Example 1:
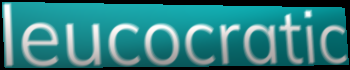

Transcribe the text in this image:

leucocratic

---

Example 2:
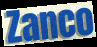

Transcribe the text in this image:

Zanco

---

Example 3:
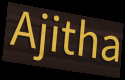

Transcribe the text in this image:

Ajitha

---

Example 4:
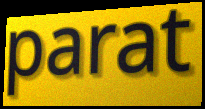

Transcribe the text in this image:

parat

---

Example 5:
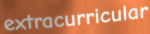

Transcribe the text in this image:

extracurricular